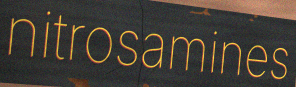
nitrosamines